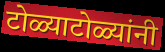
टोळ्याटोळ्यांनी